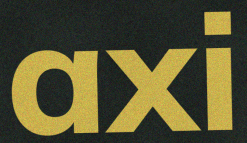
axi